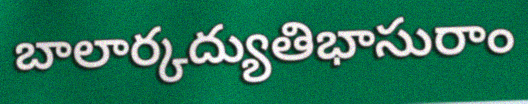
బాలార్కద్యుతిభాసురాం